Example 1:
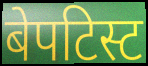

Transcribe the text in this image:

बेपटिस्ट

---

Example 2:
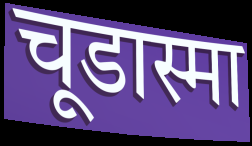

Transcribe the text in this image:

चूडास्मा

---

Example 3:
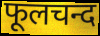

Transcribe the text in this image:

फूलचन्द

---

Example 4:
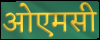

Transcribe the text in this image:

ओएमसी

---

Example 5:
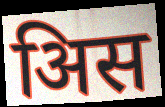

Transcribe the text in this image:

अिस